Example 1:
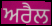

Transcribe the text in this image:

ਅਰੈਲ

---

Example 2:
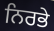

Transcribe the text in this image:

ਨਿਰਭੇ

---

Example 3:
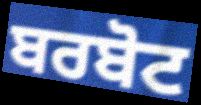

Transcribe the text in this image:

ਬਰਬੋਟ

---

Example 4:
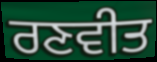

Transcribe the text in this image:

ਰਣਵੀਤ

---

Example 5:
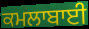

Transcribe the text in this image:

ਕਮਲਾਬਾਈ